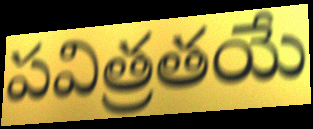
పవిత్రతయే